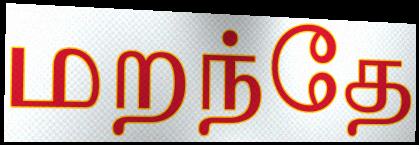
மறந்தே